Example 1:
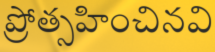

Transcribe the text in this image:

ప్రోత్సహించినవి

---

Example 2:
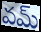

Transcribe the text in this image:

వమ్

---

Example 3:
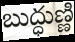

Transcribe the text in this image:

బుద్ధుణ్ణి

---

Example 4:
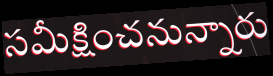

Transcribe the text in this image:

సమీక్షించనున్నారు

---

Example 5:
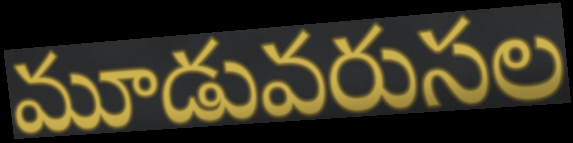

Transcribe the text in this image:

మూడువరుసల